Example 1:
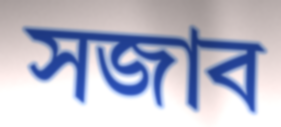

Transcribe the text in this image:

সজাব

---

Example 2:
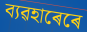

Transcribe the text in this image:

ব্যৱহাৰেৰে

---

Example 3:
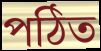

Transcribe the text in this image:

পঠিত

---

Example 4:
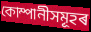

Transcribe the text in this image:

কোম্পানীসমূহৰ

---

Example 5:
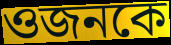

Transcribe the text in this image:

ওজনকে